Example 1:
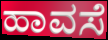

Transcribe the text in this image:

ಹಾವಸೆ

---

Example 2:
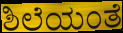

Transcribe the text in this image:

ಶಿಲೆಯಂತೆ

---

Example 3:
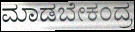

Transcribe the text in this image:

ಮಾಡಬೇಕಂದ್ರ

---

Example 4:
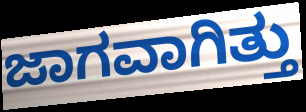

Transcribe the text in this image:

ಜಾಗವಾಗಿತ್ತು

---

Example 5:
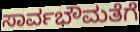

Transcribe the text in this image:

ಸಾರ್ವಭೌಮತೆಗೆ